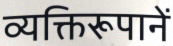
व्यक्तिरूपानें